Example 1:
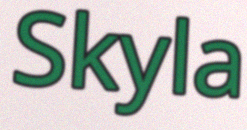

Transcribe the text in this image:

Skyla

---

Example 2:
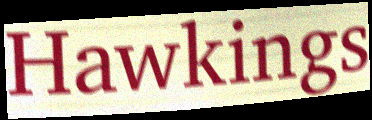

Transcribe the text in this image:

Hawkings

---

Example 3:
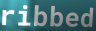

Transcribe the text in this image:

ribbed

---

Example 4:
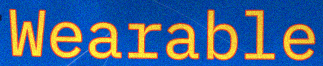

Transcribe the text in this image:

Wearable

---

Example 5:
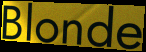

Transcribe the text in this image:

Blonde